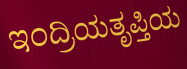
ಇಂದ್ರಿಯತೃಪ್ತಿಯ